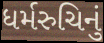
ધર્મરુચિનું